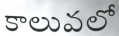
కాలువలో